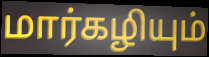
மார்கழியும்